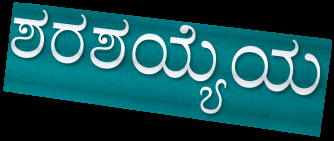
ಶರಶಯ್ಯೆಯ